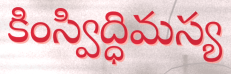
కింస్విద్ధిమస్య